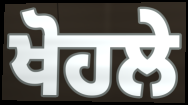
ਖੋਹਲੇ